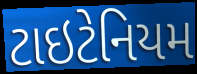
ટાઇટેનિયમ